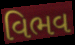
વિભવ